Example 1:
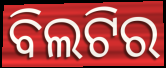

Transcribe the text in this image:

ବିଲଟିର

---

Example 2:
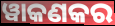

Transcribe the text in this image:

ୱାକଣକର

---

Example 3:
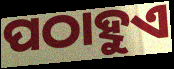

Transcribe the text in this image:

ପଠାହୁଏ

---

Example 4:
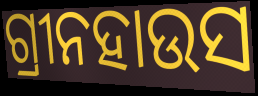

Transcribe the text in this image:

ଗ୍ରୀନହାଉସ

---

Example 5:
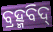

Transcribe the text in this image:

ବ୍ରହ୍ମବିଦ୍